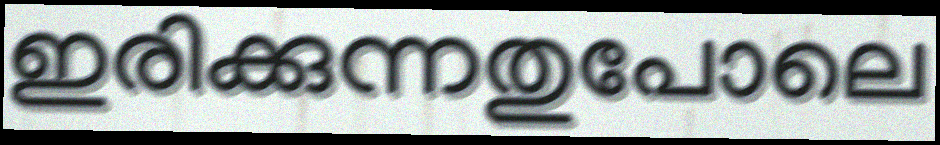
ഇരിക്കുന്നതുപോലെ